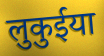
लुकुईया